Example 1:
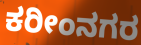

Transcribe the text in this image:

ಕರೀಂನಗರ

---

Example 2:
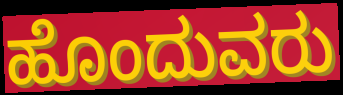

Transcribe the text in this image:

ಹೊಂದುವರು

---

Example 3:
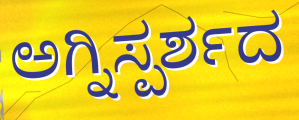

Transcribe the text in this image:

ಅಗ್ನಿಸ್ಪರ್ಶದ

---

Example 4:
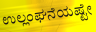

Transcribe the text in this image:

ಉಲ್ಲಂಘನೆಯಷ್ಟೇ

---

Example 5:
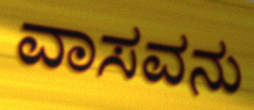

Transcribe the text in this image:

ವಾಸವನು